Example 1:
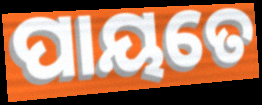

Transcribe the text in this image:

ପାୟତେ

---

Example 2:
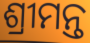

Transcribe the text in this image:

ଶ୍ରୀମନ୍ତ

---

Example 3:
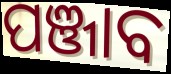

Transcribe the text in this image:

ପଞ୍ଜାବ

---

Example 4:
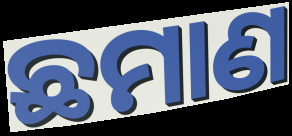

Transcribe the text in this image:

ଛମାଣ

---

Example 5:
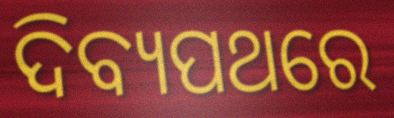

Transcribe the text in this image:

ଦିବ୍ୟପଥରେ